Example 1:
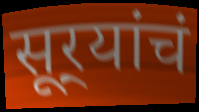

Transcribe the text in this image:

सूर्यांचं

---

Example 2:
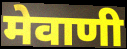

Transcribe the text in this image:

मेवाणी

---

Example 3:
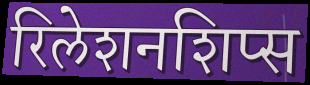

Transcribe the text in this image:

रिलेशनशिप्स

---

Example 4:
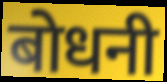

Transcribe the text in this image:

बोधनी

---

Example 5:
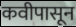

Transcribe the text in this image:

कवीपासून